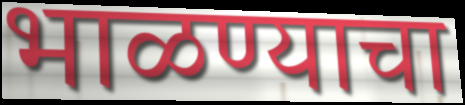
भाळण्याचा